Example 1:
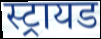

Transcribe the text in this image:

स्ट्रायड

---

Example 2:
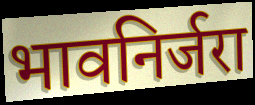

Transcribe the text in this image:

भावनिर्जरा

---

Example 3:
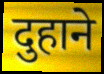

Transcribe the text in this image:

दुहाने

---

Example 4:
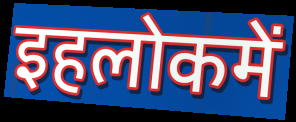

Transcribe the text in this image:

इहलोकमें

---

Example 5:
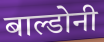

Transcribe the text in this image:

बाल्डोनी